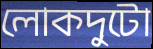
লোকদুটো